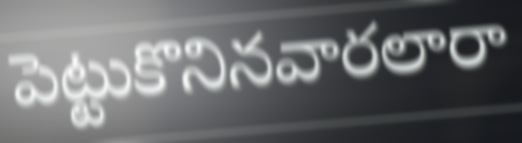
పెట్టుకొనినవారలారా